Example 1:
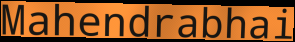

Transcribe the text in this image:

Mahendrabhai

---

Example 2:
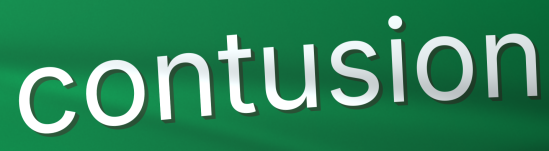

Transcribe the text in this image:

contusion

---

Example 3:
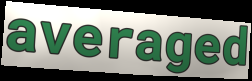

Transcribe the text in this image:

averaged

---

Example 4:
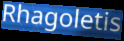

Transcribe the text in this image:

Rhagoletis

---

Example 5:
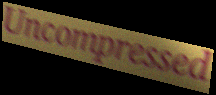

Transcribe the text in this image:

Uncompressed